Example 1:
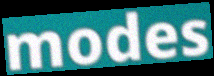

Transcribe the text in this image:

modes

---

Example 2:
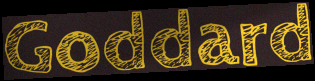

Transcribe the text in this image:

Goddard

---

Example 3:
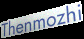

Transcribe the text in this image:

Thenmozhi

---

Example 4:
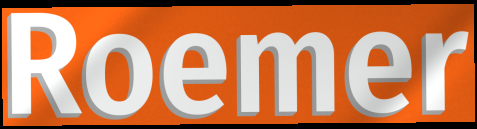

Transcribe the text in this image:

Roemer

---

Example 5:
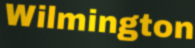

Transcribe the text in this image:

Wilmington